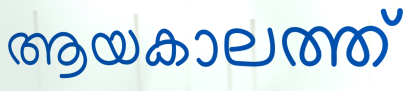
ആയകാലത്ത്